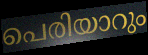
പെരിയാറും